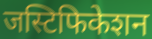
जस्टिफिकेशन